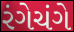
રંગેચંગે